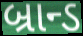
બ્રાન્ડ